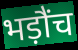
भड़ौंच